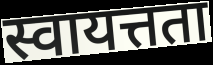
स्वायत्तता